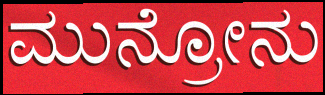
ಮುನ್ರೋನು